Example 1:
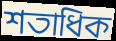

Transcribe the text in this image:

শতাধিক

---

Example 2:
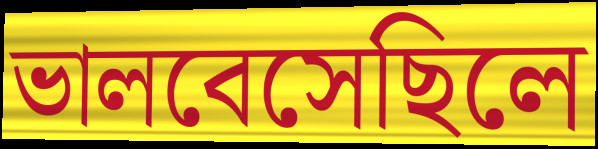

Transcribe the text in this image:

ভালবেসেছিলে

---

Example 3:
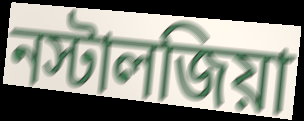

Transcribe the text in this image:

নস্টালজিয়া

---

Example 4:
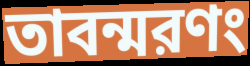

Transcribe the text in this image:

তাবন্মরণং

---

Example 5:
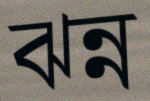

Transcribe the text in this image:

ঝন্ন